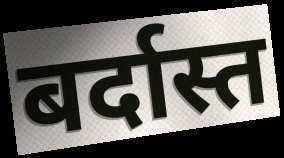
बर्दास्त